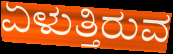
ಏಳುತ್ತಿರುವ